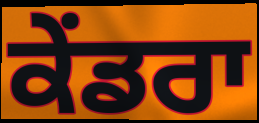
ਕੇਂਡਰਾ